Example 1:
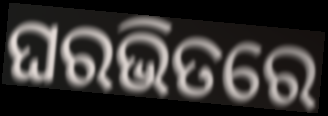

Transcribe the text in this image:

ଘରଭିତରେ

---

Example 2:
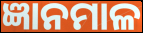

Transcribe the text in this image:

ଜ୍ଞାନମାଳ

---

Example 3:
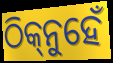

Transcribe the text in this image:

ଠିକ୍‌ନୁହେଁ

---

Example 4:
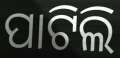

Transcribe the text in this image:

ପାଟିଲି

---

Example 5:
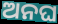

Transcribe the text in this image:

ଅନଘ